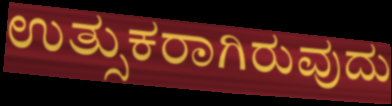
ಉತ್ಸುಕರಾಗಿರುವುದು